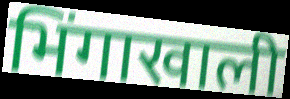
भिंगाखाली